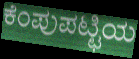
ಕೆಂಪುಪಟ್ಟಿಯ